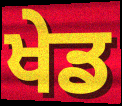
ਖੇਡ